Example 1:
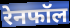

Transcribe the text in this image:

रेनफॉल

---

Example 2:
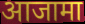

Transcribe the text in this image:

आजामा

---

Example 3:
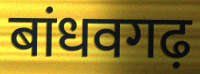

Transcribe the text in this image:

बांधवगढ़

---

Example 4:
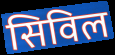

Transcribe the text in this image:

सिविल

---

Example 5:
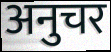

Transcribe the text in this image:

अनुचर